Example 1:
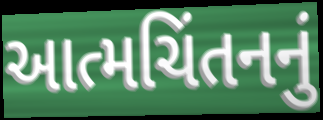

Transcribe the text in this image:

આત્મચિંતનનું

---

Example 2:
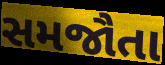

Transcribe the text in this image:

સમજૌતા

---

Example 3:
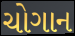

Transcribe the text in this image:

ચોગાન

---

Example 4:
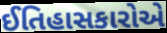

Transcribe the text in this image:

ઈતિહાસકારોએ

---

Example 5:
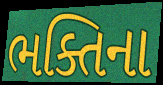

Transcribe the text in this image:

ભક્તિના